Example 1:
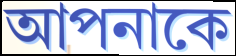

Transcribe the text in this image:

আপনাকে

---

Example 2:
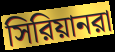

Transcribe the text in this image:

সিরিয়ানরা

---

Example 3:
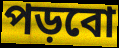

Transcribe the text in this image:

পড়বো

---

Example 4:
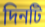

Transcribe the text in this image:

দিনটি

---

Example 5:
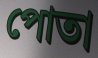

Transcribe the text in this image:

পোতা